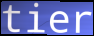
tier